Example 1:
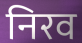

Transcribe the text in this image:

निरव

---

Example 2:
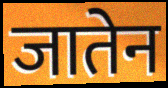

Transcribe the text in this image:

जातेन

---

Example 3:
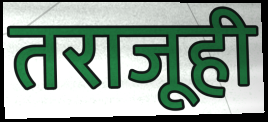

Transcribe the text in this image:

तराजूही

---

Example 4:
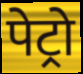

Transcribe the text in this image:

पेट्रो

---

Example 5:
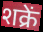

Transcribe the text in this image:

शक्रें